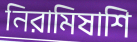
নিরামিষাশি